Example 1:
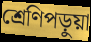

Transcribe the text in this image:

শ্রেণিপড়ুয়া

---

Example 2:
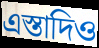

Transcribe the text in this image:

এস্তাদিও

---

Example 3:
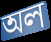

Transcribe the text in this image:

অল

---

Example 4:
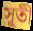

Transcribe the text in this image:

সূতী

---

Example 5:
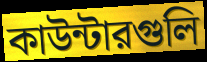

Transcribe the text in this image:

কাউন্টারগুলি